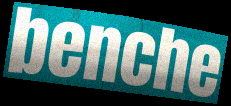
benche